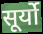
सूर्यो